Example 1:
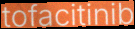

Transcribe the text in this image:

tofacitinib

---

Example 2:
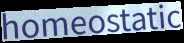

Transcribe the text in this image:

homeostatic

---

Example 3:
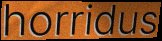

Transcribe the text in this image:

horridus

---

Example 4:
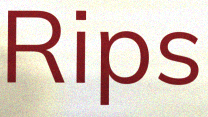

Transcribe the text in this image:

Rips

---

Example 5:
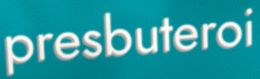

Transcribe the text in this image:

presbuteroi